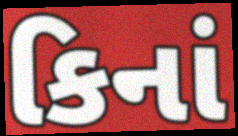
કિનાં